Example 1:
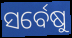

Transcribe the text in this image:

ସର୍ବେଷୁ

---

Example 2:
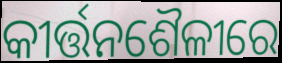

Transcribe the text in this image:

କୀର୍ତ୍ତନଶୈଳୀରେ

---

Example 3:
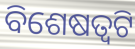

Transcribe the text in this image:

ବିଶେଷତ୍ୱଟି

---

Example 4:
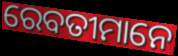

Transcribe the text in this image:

ରେବତୀମାନେ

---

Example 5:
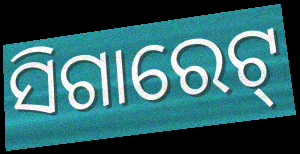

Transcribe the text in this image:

ସିଗାରେଟ୍